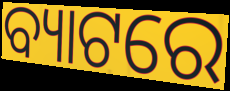
ବ୍ୟାଟରେ